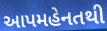
આપમહેનતથી